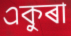
একুৰা